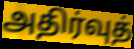
அதிர்வுத்